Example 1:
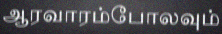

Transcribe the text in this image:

ஆரவாரம்போலவும்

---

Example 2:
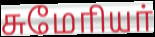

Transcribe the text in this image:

சுமேரியர்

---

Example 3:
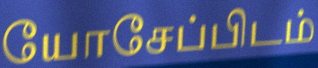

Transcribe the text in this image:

யோசேப்பிடம்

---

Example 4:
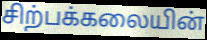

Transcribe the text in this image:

சிற்பக்கலையின்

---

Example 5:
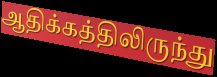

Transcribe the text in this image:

ஆதிக்கத்திலிருந்து